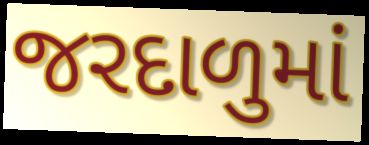
જરદાળુમાં